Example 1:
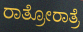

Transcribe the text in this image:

ರಾತ್ರೋರಾತ್ರೆ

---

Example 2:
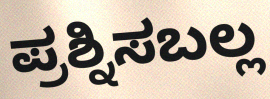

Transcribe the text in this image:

ಪ್ರಶ್ನಿಸಬಲ್ಲ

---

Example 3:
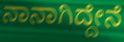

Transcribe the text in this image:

ನಾನಾಗಿದ್ದೇನೆ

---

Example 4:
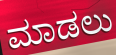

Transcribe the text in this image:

ಮಾಡಲು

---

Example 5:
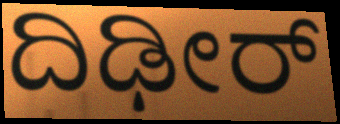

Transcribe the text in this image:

ದಿಢೀರ್